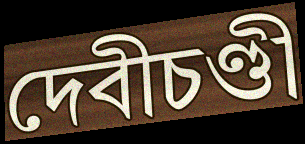
দেবীচণ্ডী